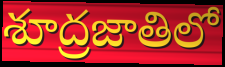
శూద్రజాతిలో